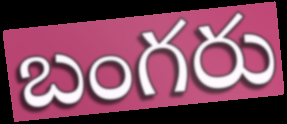
బంగరు